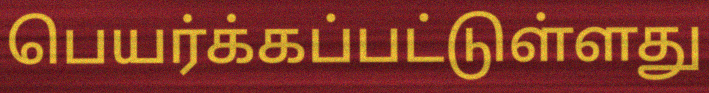
பெயர்க்கப்பட்டுள்ளது